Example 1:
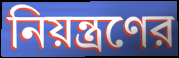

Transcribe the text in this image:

নিয়ন্ত্রণের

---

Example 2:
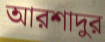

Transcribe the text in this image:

আরশাদুর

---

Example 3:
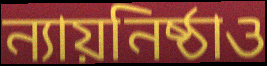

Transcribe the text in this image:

ন্যায়নিষ্ঠাও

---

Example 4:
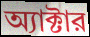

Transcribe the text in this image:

অ্যাক্টার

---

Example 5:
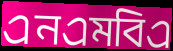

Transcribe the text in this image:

এনএমবিএ